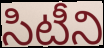
సిటీని